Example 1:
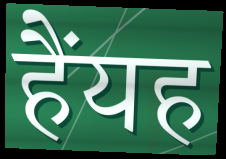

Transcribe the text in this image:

हैंयह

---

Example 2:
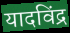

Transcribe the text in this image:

यादविंद्र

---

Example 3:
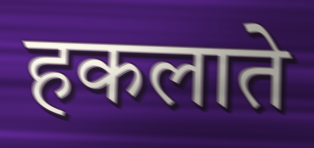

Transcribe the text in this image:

हकलाते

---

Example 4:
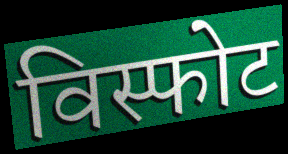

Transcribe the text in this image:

विस्फोट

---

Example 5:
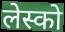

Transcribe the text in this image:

लेस्को